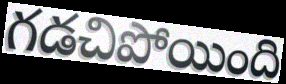
గడచిపోయింది